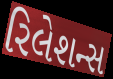
રિલેશન્સ